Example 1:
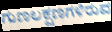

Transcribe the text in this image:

ಗುಣಲಕ್ಷಣಗಳಿರುವ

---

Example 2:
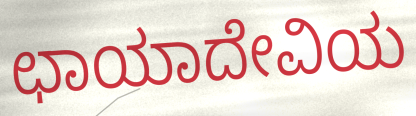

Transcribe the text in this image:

ಛಾಯಾದೇವಿಯ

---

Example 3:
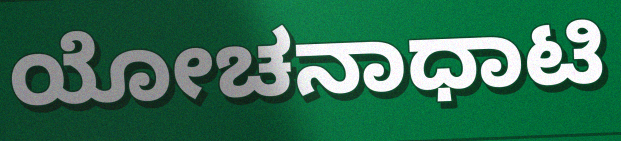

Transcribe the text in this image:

ಯೋಚನಾಧಾಟಿ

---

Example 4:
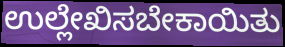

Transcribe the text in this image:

ಉಲ್ಲೇಖಿಸಬೇಕಾಯಿತು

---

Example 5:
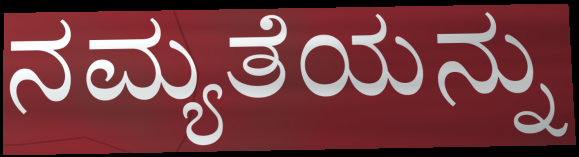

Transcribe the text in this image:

ನಮ್ಯತೆಯನ್ನು